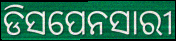
ଡିସପେନସାରୀ